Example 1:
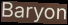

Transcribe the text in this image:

Baryon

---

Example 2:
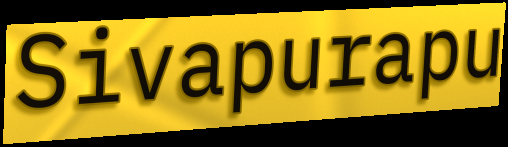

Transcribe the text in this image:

Sivapurapu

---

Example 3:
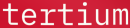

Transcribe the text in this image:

tertium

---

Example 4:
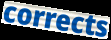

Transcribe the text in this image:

corrects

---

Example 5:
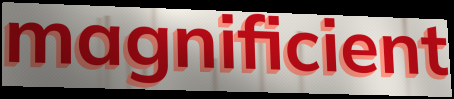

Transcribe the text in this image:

magnificient